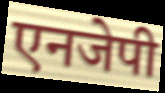
एनजेपी